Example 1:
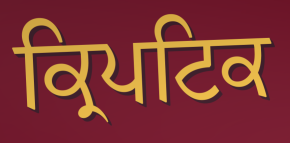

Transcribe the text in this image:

ਕ੍ਰਿਪਟਿਕ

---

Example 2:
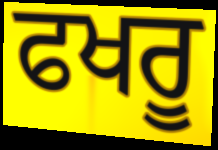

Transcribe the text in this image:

ਫਖਰੂ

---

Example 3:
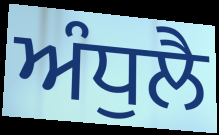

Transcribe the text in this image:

ਅੰਧੁਲੈ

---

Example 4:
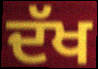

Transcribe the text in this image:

ਦੱਖ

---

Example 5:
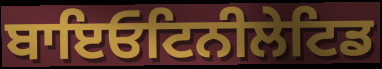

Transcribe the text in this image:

ਬਾਇਓਟਿਨੀਲੇਟਿਡ